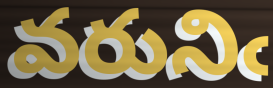
వరునిఁ